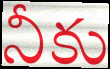
నీకు